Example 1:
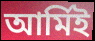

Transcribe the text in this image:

আর্মিই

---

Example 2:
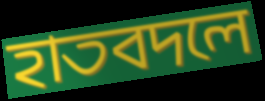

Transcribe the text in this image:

হাতবদলে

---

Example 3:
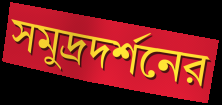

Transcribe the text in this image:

সমুদ্রদর্শনের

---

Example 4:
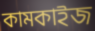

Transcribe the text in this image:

কামকাইজ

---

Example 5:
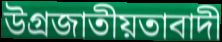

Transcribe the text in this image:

উগ্রজাতীয়তাবাদী